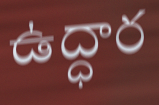
ఉద్ధార